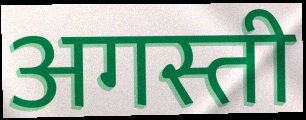
अगस्ती